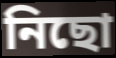
নিছো